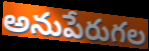
అనుపేరుగల